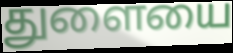
துளையை